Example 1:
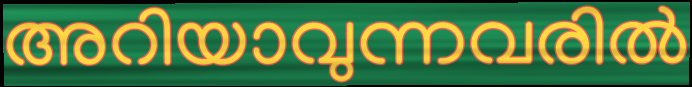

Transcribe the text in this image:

അറിയാവുന്നവരിൽ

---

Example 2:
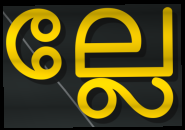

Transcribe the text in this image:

ല്ലേ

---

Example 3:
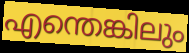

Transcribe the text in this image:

എന്തെങ്കിലും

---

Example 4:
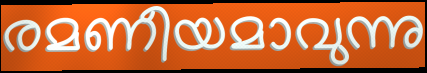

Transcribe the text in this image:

രമണീയമാവുന്നു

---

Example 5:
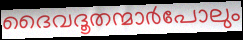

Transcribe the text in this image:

ദൈവദൂതന്മാർപോലും